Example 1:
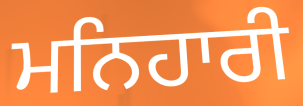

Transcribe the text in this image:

ਮਨਿਹਾਰੀ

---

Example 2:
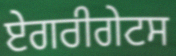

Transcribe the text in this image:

ਏਗਰੀਗੇਟਸ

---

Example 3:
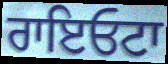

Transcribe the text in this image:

ਰਾਇਓਟਾ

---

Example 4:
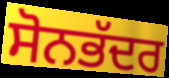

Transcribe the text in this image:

ਸੋਨਭੱਦਰ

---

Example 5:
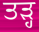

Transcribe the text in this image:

ਤੜ੍ਹ